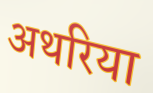
अथरिया